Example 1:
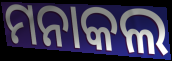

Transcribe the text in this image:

ମନାକଲ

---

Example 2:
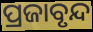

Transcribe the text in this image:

ପ୍ରଜାବୃନ୍ଦ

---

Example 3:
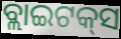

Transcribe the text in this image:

ବ୍ଲାଇଟକ୍‌ସ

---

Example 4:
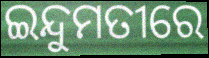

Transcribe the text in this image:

ଇନ୍ଦୁମତୀରେ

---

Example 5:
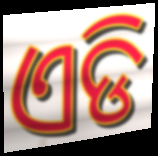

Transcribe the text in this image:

ଏଡି